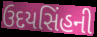
ઉદયસિંહની